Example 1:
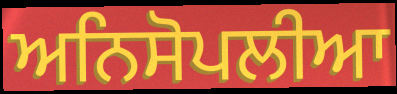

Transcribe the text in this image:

ਅਨਿਸੋਪਲੀਆ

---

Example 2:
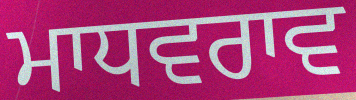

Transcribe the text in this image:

ਮਾਧਵਰਾਵ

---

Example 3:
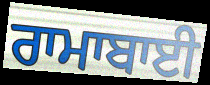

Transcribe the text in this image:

ਰਾਮਾਬਾਈ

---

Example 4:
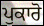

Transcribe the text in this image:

ਪੁਕਾਰੋ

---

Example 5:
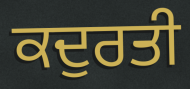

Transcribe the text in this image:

ਕਦੁਰਤੀ